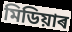
মিডিয়াৰ